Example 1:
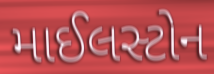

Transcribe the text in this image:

માઈલસ્ટોન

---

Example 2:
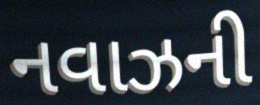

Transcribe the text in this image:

નવાઝની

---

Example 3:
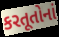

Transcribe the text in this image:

કરતૂતોનાં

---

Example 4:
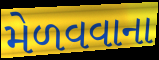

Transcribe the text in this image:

મેળવવાના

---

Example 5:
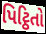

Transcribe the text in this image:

પિટ્ઠિતો